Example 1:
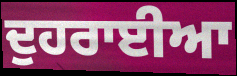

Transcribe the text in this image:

ਦੁਹਰਾਈਆ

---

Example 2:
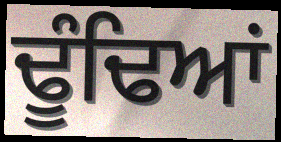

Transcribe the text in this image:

ਢੂੰਢਿਆਂ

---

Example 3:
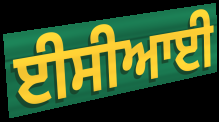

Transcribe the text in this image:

ਈਸੀਆਈ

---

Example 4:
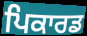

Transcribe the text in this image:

ਪਿਕਾਰਡ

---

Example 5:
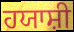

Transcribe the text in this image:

ਹਯਾਸ਼ੀ